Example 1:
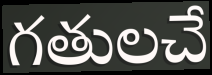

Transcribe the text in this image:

గతులచే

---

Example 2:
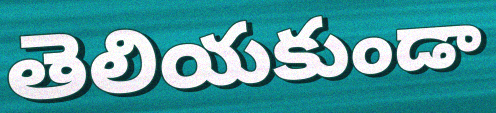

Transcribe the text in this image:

తెలియకుండా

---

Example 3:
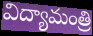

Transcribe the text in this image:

విద్యామంత్రి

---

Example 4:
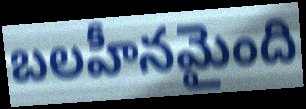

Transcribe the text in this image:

బలహీనమైంది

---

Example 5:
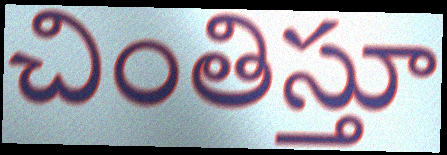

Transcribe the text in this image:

చింతిస్తూ